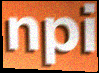
npi